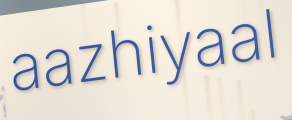
aazhiyaal